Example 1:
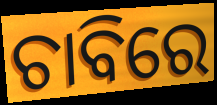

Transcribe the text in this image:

ଚାବିରେ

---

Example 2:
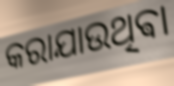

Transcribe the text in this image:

କରାଯାଉଥିଵା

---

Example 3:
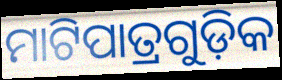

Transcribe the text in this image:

ମାଟିପାତ୍ରଗୁଡ଼ିକ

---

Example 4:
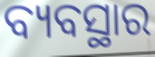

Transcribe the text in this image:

ବ୍ୟବସ୍ଥାର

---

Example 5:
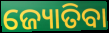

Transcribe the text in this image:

ଜ୍ୟୋତିବା